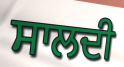
ਸਾਲਦੀ